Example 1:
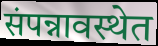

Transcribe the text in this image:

संपन्नावस्थेत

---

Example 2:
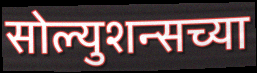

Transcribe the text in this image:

सोल्युशन्सच्या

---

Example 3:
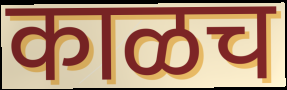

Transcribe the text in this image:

काळच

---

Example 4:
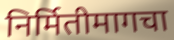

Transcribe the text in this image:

निर्मितीमागचा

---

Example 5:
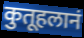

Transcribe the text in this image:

कुतूहलानं